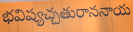
భవిష్యచ్చతురాననాయ